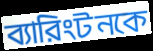
ব্যারিংটনকে